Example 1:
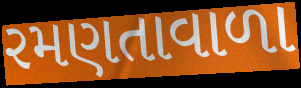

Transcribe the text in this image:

રમણતાવાળા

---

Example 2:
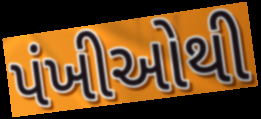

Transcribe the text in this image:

પંખીઓથી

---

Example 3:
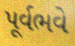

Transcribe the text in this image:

પૂર્વભવે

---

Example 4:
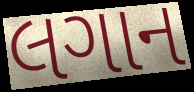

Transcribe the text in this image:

લગાન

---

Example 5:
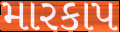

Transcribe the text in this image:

મારકાપ